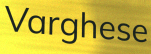
Varghese